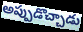
అప్పుడొచ్చాడు